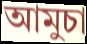
আমুচা